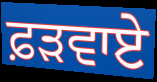
ਫ਼ੜਵਾਏ